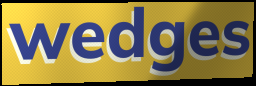
wedges